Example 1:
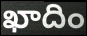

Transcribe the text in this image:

ఖాదిం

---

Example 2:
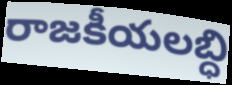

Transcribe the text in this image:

రాజకీయలబ్ధి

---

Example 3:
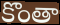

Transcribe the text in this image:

కొంతా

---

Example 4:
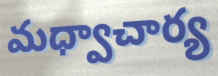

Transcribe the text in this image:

మధ్వాచార్య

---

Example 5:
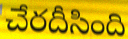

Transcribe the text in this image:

చేరదీసింది